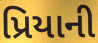
પ્રિયાની